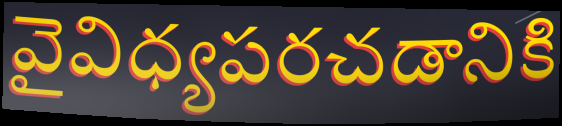
వైవిధ్యపరచడానికి